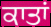
ਕਾਤਾਂ